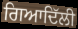
ਗਿਆਦਿੱਲੀ